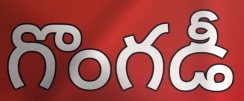
గొంగడీ